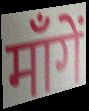
माँगें